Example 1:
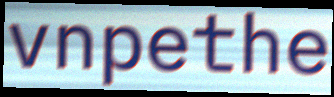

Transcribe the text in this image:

vnpethe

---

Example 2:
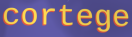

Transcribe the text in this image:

cortege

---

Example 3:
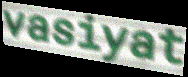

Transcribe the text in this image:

vasiyat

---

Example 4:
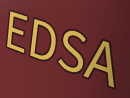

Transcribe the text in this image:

EDSA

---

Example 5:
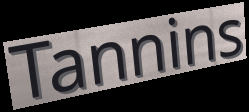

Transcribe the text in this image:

Tannins